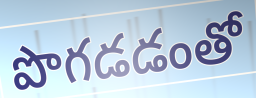
పొగడడంతో